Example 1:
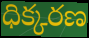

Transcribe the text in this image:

ధిక్కరణ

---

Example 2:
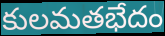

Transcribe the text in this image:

కులమతభేదం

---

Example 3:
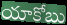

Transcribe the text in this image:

యాకోబు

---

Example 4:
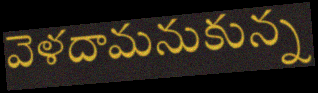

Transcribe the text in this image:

వెళదామనుకున్న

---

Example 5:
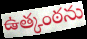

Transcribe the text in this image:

ఉత్కంఠను